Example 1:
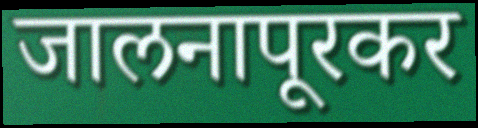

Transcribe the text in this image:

जालनापूरकर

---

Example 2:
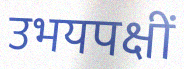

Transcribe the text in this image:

उभयपक्षीं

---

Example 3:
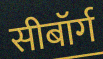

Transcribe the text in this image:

सीबॉर्ग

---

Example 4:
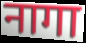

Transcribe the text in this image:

नागा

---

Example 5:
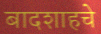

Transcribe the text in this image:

बादशाहचे